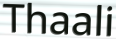
Thaali